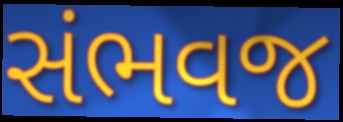
સંભવજ